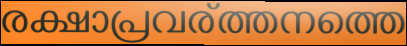
രക്ഷാപ്രവര്ത്തനത്തെ